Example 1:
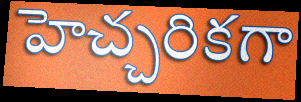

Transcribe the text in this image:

హెచ్చరికగా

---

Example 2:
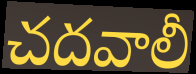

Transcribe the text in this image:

చదవాలీ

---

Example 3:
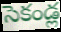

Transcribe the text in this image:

సెకండ్ల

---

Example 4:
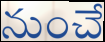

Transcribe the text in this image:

నుంచే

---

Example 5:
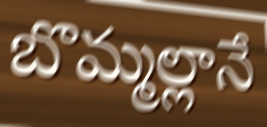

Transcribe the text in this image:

బొమ్మల్లానే